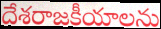
దేశరాజకీయాలను